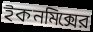
ইকনমিক্সের